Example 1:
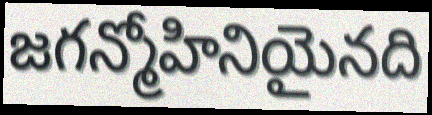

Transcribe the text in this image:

జగన్మోహినియైనది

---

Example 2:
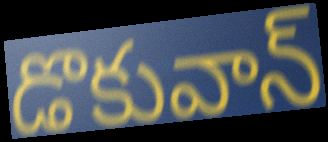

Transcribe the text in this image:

డొకువాన్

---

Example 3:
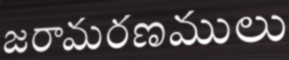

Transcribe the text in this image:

జరామరణములు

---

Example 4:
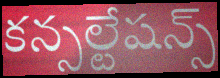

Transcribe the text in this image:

కన్సల్టేషన్స్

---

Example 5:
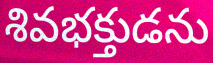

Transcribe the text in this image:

శివభక్తుడను